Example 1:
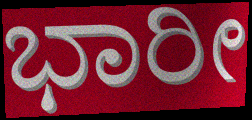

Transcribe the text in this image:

ಭಾರೀ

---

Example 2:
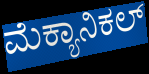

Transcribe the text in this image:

ಮೆಕ್ಯಾನಿಕಲ್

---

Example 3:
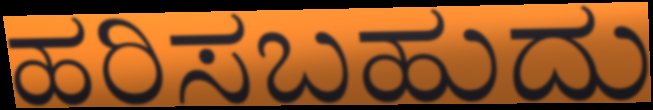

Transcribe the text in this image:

ಹರಿಸಬಹುದು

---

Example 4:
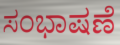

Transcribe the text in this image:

ಸಂಭಾಷಣೆ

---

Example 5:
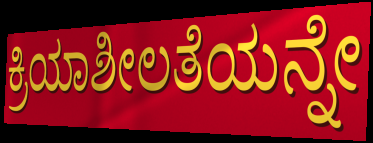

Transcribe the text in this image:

ಕ್ರಿಯಾಶೀಲತೆಯನ್ನೇ